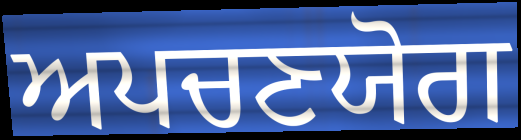
ਅਪਚਣਯੋਗ